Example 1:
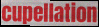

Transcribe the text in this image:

cupellation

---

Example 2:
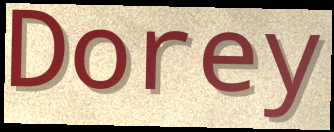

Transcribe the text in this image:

Dorey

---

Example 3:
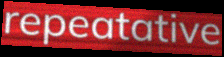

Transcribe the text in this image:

repeatative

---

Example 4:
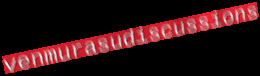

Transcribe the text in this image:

venmurasudiscussions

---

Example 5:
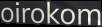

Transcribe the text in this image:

oirokom